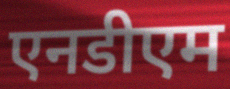
एनडीएम